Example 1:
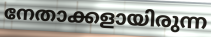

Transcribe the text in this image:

നേതാക്കളായിരുന്ന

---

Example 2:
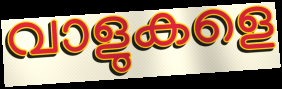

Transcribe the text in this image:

വാളുകളെ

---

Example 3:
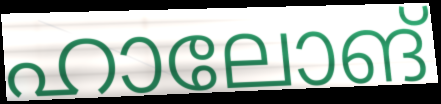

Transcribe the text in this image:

ഹാലോങ്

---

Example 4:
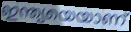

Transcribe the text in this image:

ഇന്ത്യയെയാണ്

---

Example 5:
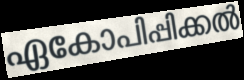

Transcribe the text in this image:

ഏകോപിപ്പിക്കൽ